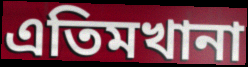
এতিমখানা